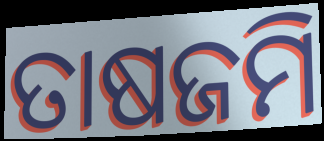
ତାଷଜମି